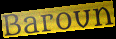
Baroun